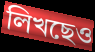
লিখছেও